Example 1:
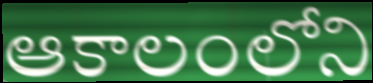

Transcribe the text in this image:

ఆకాలంలోని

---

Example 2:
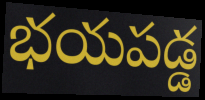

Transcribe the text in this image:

భయపడ్డ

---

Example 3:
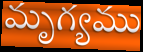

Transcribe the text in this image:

మృగ్యము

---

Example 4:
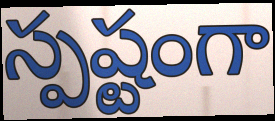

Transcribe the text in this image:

స్పష్టంగా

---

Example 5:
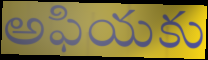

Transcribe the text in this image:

అఫియకు